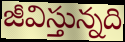
జీవిస్తున్నది